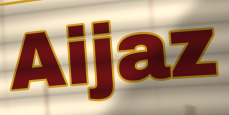
Aijaz